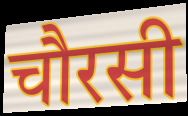
चौरसी